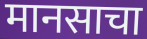
मानसाचा